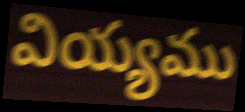
వియ్యము